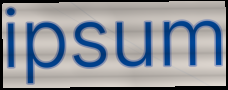
ipsum